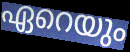
ഏറെയും